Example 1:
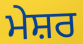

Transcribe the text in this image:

ਮੇਸ਼ਰ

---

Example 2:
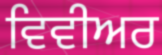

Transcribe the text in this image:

ਵਿਵੀਅਰ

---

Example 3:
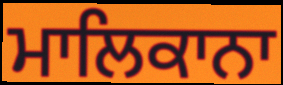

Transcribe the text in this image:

ਮਾਲਿਕਾਨਾ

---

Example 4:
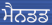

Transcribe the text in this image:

ਮੈਨਡਡ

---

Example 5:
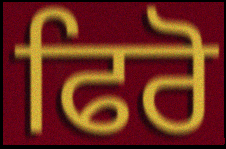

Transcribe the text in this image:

ਫਿਰੋ